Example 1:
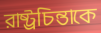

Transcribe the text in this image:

রাষ্ট্রচিন্তাকে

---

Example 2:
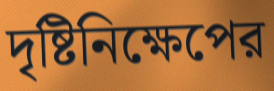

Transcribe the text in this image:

দৃষ্টিনিক্ষেপের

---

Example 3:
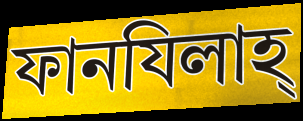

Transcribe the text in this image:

ফানযিলাহ্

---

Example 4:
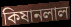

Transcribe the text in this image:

কিষানলাল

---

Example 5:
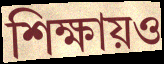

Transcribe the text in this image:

শিক্ষায়ও